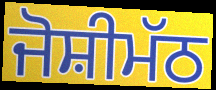
ਜੋਸ਼ੀਮੱਠ